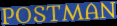
POSTMAN